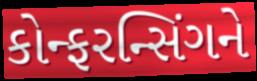
કોન્ફરન્સિંગને